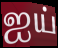
ஐய்